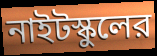
নাইটস্কুলের